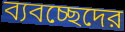
ব্যবচ্ছেদের